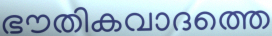
ഭൗതികവാദത്തെ